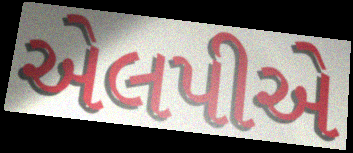
એલપીએ